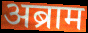
अब्राम